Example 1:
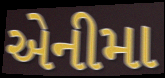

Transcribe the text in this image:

એનીમા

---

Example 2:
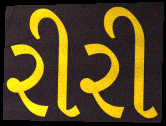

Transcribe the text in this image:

રીરી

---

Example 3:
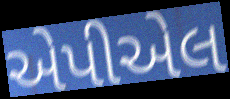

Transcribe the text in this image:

એપીએલ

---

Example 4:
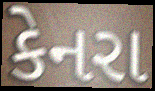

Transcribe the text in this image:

કેનરા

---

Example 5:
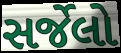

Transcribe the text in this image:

સર્જેલો